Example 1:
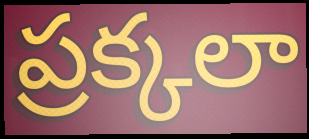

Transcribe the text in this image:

ప్రక్కలా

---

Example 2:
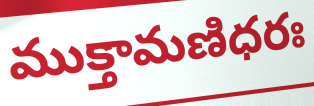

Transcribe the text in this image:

ముక్తామణిధరః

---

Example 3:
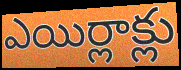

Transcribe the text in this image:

ఎయిర్లాక్లు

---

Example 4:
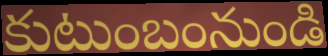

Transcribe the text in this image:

కుటుంబంనుండి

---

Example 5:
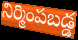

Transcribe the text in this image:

నిర్మింపబడ్డ